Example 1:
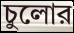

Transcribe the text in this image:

চুলোর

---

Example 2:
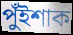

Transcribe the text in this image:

পুঁইশাক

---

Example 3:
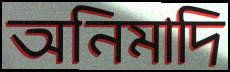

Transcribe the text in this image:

অনিমাদি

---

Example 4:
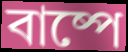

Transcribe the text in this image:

বাষ্পে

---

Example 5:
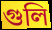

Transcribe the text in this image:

গুলি